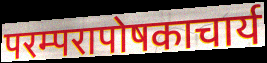
परम्परापोषकाचार्य